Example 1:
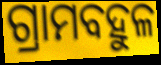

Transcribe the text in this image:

ଗ୍ରାମବହୁଳ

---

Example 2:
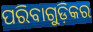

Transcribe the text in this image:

ପରିବାଗୁଡ଼ିକର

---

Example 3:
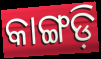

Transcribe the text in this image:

କାଙ୍ଗଡ଼ି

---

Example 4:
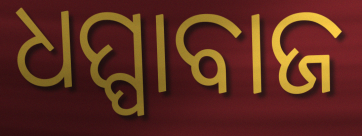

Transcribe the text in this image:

ଧପ୍ପାବାଜ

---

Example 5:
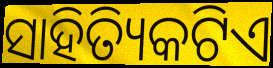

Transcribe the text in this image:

ସାହିତ୍ୟିକଟିଏ